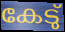
കേടു്